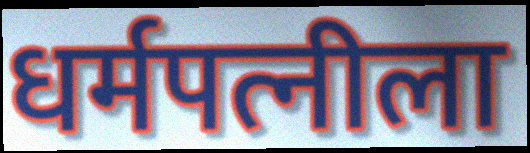
धर्मपत्नीला